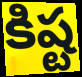
కిష్ట